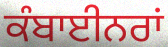
ਕੰਬਾਈਨਰਾਂ